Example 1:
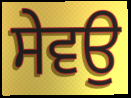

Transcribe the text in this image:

ਸੇਵਉ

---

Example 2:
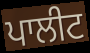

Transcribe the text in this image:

ਪਾਲੀਟ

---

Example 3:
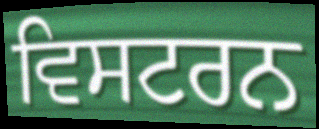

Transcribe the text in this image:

ਵਿਸਟਰਨ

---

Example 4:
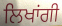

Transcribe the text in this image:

ਲਿਖਾਂਗੀ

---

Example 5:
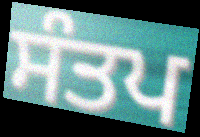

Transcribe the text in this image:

ਸੰਤਪ